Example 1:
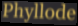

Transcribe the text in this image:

Phyllode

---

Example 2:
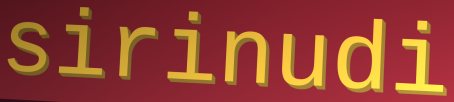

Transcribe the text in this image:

sirinudi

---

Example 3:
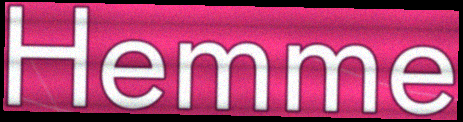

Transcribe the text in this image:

Hemme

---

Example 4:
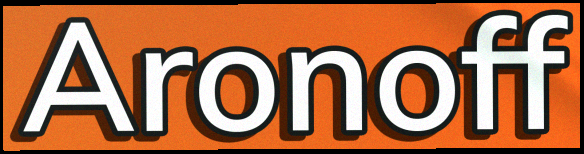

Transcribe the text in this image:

Aronoff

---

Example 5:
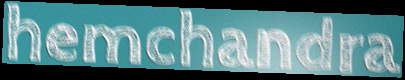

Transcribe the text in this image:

hemchandra